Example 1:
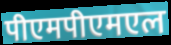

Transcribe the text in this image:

पीएमपीएमएल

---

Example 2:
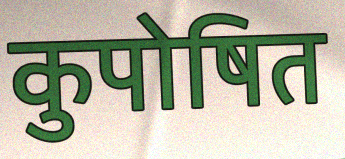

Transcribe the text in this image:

कुपोषित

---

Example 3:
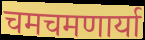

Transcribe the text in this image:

चमचमणार्या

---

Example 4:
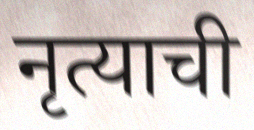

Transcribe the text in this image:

नृत्याची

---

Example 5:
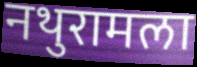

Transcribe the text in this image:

नथुरामला